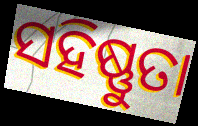
ସହିଷ୍ଣୁତା